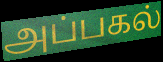
அப்பகல்